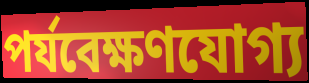
পর্যবেক্ষণযোগ্য